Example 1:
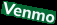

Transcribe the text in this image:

Venmo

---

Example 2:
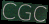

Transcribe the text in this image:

CGC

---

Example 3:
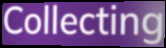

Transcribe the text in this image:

Collecting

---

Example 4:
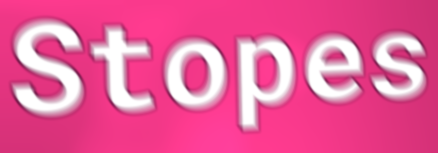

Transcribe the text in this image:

Stopes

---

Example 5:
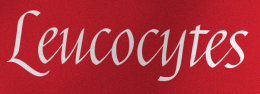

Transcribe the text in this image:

Leucocytes